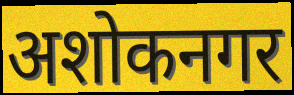
अशोकनगर